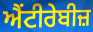
ਐਂਟੀਰੇਬੀਜ਼